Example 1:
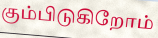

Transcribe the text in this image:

கும்பிடுகிறோம்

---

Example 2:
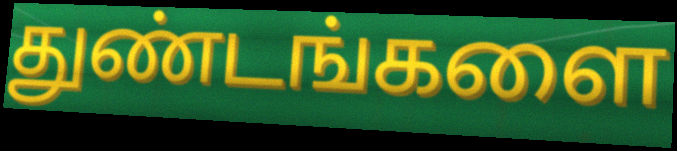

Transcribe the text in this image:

துண்டங்களை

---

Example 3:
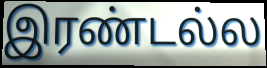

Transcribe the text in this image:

இரண்டல்ல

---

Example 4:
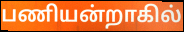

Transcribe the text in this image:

பணியன்றாகில்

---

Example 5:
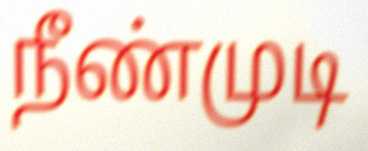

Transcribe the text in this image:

நீண்முடி